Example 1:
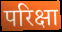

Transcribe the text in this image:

परिक्षा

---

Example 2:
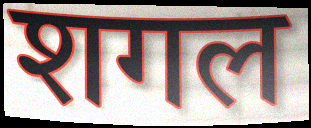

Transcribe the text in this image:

शगल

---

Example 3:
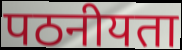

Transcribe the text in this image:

पठनीयता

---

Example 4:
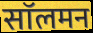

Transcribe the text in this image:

सॉलमन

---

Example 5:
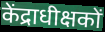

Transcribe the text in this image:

केंद्राधीक्षकों